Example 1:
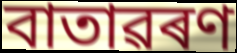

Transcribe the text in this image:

বাতাৱৰণ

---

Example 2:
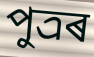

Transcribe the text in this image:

পুত্ৰৰ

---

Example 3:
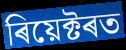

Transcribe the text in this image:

ৰিয়েক্টৰত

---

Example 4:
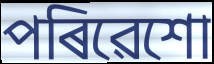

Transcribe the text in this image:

পৰিৱেশো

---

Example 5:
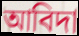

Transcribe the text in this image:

আবিদা